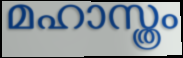
മഹാസ്ത്രം